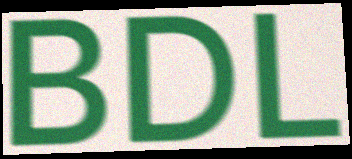
BDL